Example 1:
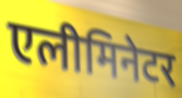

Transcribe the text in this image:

एलीमिनेटर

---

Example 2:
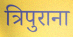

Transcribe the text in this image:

त्रिपुराना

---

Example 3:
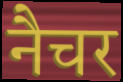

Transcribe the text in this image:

नैचर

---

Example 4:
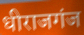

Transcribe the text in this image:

धीराजगंज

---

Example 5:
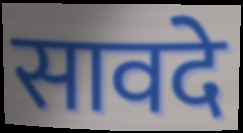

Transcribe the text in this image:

सावदे